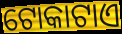
ଟୋକାଟାଏ